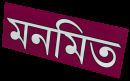
মনমিত